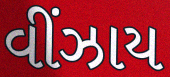
વીંઝાય